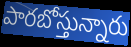
పారబోస్తున్నారు